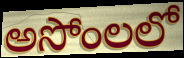
అసోంలలో